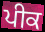
ਪੀਕ